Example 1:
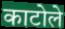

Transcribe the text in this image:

काटोले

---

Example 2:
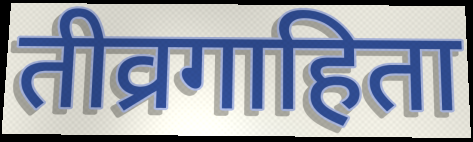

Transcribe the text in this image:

तीव्रगाहिता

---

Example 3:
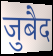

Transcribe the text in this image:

जुबैद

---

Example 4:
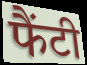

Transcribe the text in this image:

फैंटी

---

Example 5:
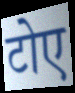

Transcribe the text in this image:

टोए